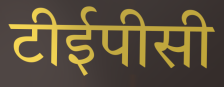
टीईपीसी